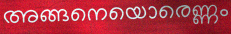
അങ്ങനെയൊരെണ്ണം